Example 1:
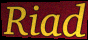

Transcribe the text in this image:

Riad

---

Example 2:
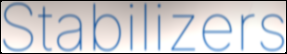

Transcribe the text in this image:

Stabilizers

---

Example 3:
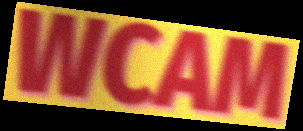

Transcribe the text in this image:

WCAM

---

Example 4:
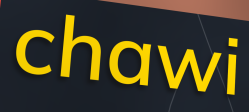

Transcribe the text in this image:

chawi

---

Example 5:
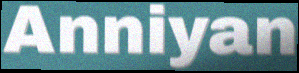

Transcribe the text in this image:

Anniyan